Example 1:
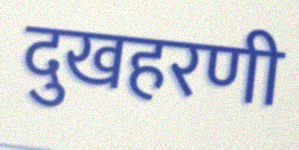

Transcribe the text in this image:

दुखहरणी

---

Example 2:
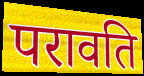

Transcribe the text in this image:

परावति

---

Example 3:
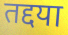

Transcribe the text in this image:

तद्दया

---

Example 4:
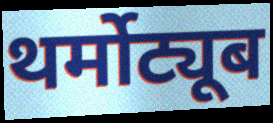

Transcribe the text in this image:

थर्मोट्यूब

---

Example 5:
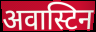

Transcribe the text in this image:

अवास्टिन